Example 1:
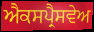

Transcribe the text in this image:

ਐਕਸਪ੍ਰੈਸਵੇਅ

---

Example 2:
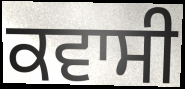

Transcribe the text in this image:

ਕਵਾਸੀ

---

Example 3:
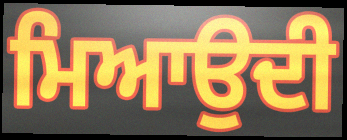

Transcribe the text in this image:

ਮਿਆਉਦੀ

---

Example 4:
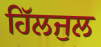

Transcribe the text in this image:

ਹਿੱਲਜੁਲ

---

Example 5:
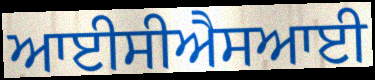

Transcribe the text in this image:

ਆਈਸੀਐਸਆਈ